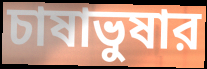
চাষাভুষার